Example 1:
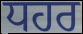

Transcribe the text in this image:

ਧਹਰ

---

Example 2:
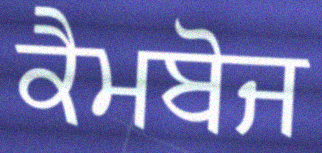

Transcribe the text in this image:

ਕੈਮਬੋਜ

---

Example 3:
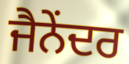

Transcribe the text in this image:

ਜੈਨੇਂਦਰ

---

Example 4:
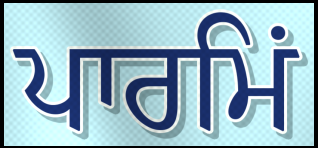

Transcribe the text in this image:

ਪਾਰਮਿਂ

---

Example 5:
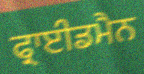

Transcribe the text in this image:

ਫ੍ਰਾਈਡਮੈਨ